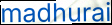
madhurai